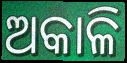
ଅକାଳି